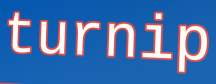
turnip